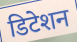
डिटेशन